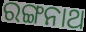
ରଙ୍ଗନାଥ